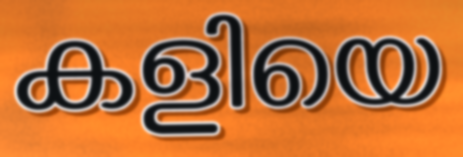
കളിയെ